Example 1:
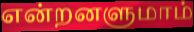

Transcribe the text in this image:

என்றனளுமாம்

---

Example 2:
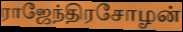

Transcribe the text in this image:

ராஜேந்திரசோழன்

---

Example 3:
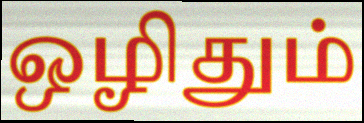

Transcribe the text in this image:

ஒழிதும்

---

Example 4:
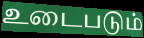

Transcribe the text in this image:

உடைபடும்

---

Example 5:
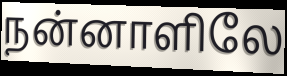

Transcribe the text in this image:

நன்னாளிலே